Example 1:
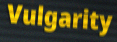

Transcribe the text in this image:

Vulgarity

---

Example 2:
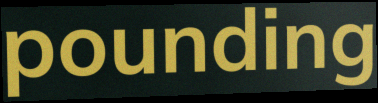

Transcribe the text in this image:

pounding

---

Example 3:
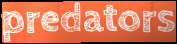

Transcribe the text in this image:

predators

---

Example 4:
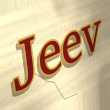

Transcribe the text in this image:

Jeev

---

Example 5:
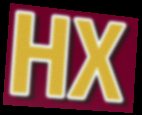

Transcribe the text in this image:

HX